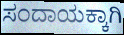
ಸಂದಾಯಕ್ಕಾಗಿ